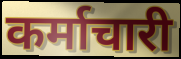
कर्माचारी